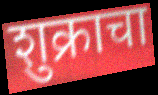
शुक्राचा